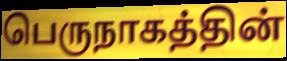
பெருநாகத்தின்